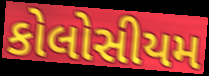
કોલોસીયમ